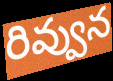
రివ్వున